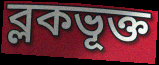
ব্লকভূক্ত